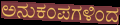
ಅನುಕಂಪಗಳಿಂದ